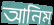
আনিম